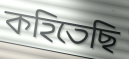
কহিতেছি